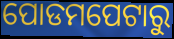
ପୋଡମପେଟାରୁ